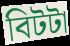
বিটটা